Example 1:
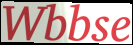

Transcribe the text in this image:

Wbbse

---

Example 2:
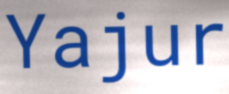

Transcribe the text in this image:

Yajur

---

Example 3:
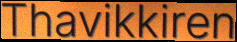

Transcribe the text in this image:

Thavikkiren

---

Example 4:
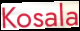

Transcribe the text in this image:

Kosala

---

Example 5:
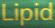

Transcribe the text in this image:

Lipid